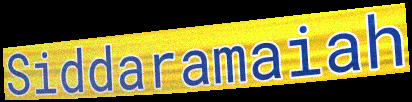
Siddaramaiah